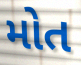
મોત